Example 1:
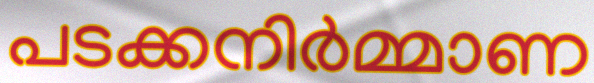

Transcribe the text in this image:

പടക്കനിർമ്മാണ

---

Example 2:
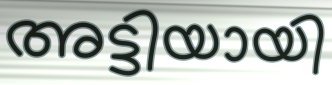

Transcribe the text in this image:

അട്ടിയായി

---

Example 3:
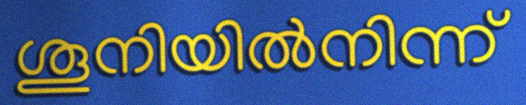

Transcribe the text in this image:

ശൂനിയിൽനിന്ന്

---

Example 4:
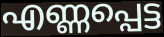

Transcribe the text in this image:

എണ്ണപ്പെട്ട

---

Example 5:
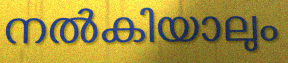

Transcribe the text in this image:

നൽകിയാലും